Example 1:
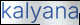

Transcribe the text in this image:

kalyana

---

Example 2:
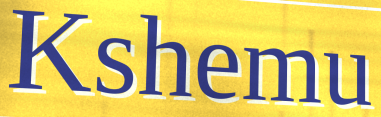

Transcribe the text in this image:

Kshemu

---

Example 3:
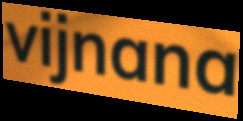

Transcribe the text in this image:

vijnana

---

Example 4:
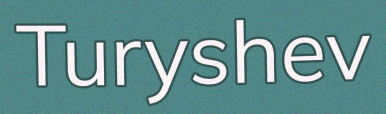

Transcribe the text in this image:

Turyshev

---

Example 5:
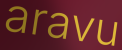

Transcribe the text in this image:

aravu